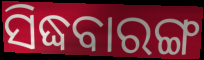
ସିଦ୍ଧବାରଙ୍ଗ